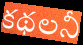
కథలనీ